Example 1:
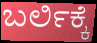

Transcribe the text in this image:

ಬರ್ಲಿಕ್ಕೆ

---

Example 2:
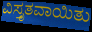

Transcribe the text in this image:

ವಿಸ್ತೃತವಾಯಿತು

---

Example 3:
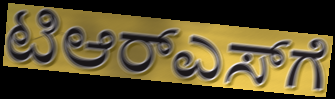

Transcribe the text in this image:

ಟಿಆರ್‌ಎಸ್‌ಗೆ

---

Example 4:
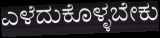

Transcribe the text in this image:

ಎಳೆದುಕೊಳ್ಳಬೇಕು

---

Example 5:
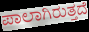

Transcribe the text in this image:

ಪಾಲಾಗಿರುತ್ತದೆ